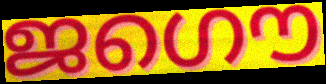
ജഗൌ